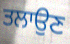
ਤਲਾਉਣ